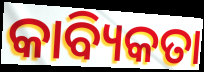
କାବ୍ୟିକତା